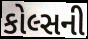
કોલ્સની